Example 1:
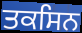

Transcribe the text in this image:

ਤਕਸਿਨ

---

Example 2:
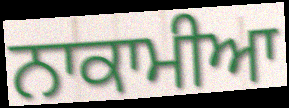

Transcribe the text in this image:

ਨਾਕਾਮੀਆ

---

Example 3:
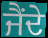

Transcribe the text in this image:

ਜੈਂਦੇ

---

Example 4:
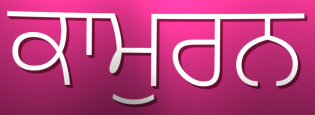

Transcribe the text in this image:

ਕਾਮੁਰਨ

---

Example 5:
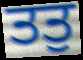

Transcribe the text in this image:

ਤਤੁ